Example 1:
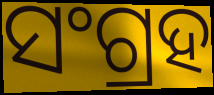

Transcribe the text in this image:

ସଂଗ୍ରହ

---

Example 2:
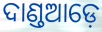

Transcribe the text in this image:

ଦାଣ୍ଡଆଡ଼େ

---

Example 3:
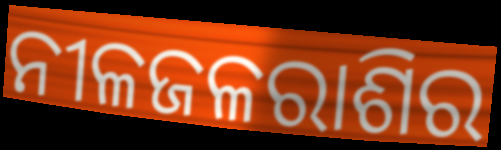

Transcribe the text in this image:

ନୀଳଜଳରାଶିର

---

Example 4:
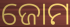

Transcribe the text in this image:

ଜୋମ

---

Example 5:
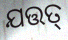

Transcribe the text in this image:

ଯତ୍ତତ୍